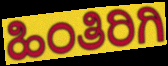
ಹಿಂತಿರಿಗಿ